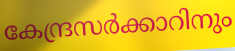
കേന്ദ്രസർക്കാറിനും